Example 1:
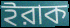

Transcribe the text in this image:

ইরাক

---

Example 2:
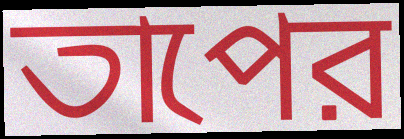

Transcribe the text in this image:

তাপের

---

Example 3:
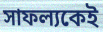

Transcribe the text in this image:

সাফল্যকেই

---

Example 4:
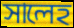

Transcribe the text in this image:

সালেহ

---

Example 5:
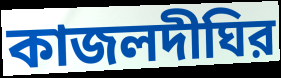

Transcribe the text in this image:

কাজলদীঘির